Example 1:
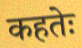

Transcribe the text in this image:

कहतेः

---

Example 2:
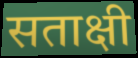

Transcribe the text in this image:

सताक्षी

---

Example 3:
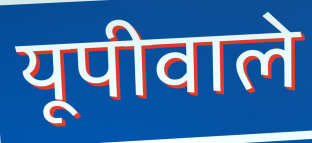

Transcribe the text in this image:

यूपीवाले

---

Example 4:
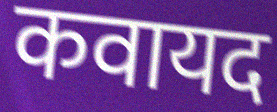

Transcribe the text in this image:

कवायद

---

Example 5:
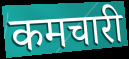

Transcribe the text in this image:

कमचारी